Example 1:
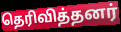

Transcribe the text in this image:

தெரிவித்தனர்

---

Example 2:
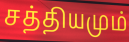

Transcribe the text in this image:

சத்தியமும்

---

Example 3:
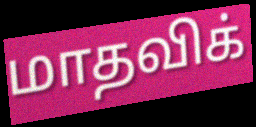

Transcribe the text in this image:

மாதவிக்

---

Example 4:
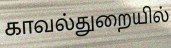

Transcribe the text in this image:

காவல்துறையில்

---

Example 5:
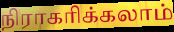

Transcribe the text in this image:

நிராகரிக்கலாம்